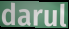
darul